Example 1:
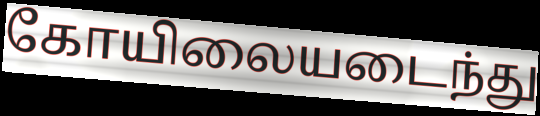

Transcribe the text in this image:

கோயிலையடைந்து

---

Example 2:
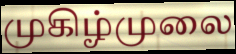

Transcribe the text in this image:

முகிழ்முலை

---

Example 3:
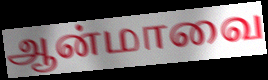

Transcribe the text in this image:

ஆன்மாவை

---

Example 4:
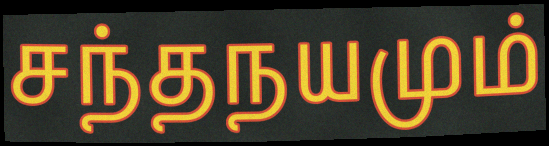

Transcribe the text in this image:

சந்தநயமும்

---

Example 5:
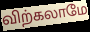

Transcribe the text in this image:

விற்கலாமே